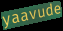
yaavude